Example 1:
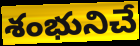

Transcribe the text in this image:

శంభునిచే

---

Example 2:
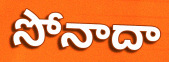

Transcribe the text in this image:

సోనాదా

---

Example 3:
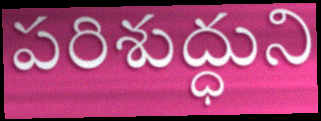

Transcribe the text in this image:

పరిశుద్ధుని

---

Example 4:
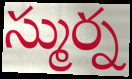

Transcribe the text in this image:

స్ముర్న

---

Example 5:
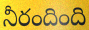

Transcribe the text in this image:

నీరందింది